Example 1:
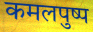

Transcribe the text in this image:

कमलपुष्प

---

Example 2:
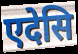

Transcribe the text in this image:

एदेसि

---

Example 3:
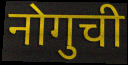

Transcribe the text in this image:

नोगुची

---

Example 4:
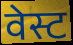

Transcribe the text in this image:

वेस्ट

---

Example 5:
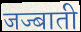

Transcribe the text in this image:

जज्बाती